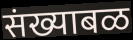
संख्याबळ